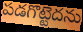
పడగొట్టెదను